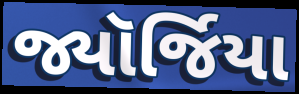
જ્યૉર્જિયા